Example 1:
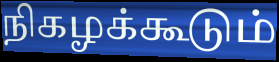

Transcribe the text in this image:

நிகழக்கூடும்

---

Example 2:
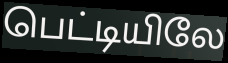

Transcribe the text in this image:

பெட்டியிலே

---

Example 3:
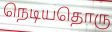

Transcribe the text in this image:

நெடியதொரு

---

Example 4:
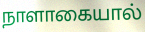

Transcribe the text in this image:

நாளாகையால்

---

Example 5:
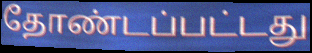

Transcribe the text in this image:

தோண்டப்பட்டது